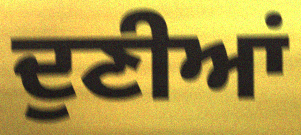
ਦੁਣੀਆਂ